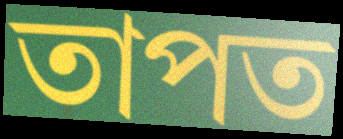
তাপত